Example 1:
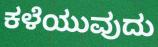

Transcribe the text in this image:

ಕಳೆಯುವುದು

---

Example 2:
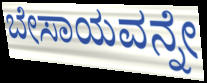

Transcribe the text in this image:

ಬೇಸಾಯವನ್ನೇ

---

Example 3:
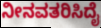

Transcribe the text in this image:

ನೀನವತರಿಸಿದೈ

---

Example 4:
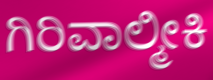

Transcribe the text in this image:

ಗಿರಿವಾಲ್ಮೀಕಿ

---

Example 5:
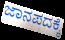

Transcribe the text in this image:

ಜಾನಪದಕ್ಕೆ